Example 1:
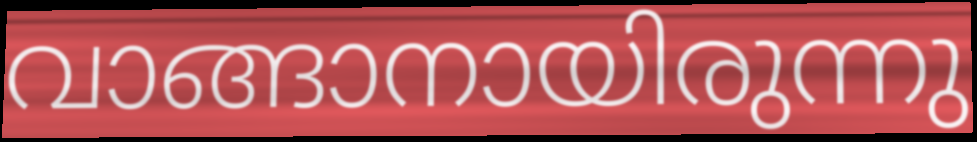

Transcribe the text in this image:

വാങ്ങാനായിരുന്നു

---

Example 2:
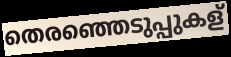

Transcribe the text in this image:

തെരഞ്ഞെടുപ്പുകള്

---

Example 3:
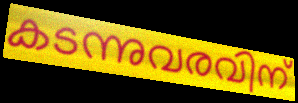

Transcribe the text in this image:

കടന്നുവരവിന്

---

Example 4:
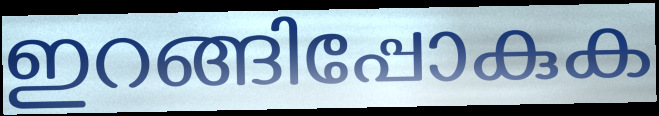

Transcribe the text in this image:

ഇറങ്ങിപ്പോകുക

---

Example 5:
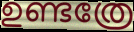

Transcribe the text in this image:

ഉണ്ടത്രേ